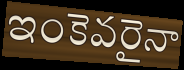
ఇంకెవరైనా